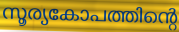
സൂര്യകോപത്തിന്റെ